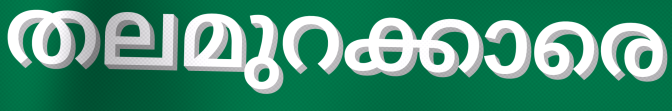
തലമുറക്കാരെ